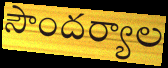
సౌందర్యాల